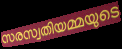
സരസ്വതിയമ്മയുടെ